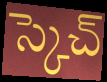
స్కెచ్